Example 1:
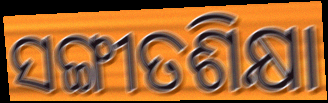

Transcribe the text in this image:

ସଙ୍ଗୀତଶିକ୍ଷା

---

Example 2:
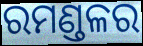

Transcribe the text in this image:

ରମଣ୍ଡଳର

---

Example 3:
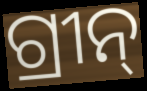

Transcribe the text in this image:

ଗ୍ରୀନ୍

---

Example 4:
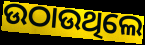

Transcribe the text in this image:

ଉଠାଉଥିଲେ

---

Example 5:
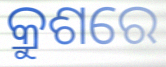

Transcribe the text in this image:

କ୍ରୁଶରେ